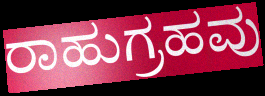
ರಾಹುಗ್ರಹವು